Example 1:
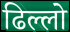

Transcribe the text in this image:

ढिल्लो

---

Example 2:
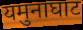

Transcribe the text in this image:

यमुनाघाट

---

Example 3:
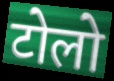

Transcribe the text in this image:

टोलो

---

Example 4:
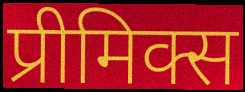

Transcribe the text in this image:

प्रीमिक्स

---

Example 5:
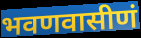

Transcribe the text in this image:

भवणवासीणं